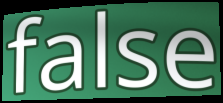
false